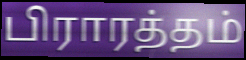
பிராரத்தம்